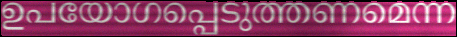
ഉപയോഗപ്പെടുത്തണമെന്ന